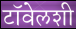
टॉवेलशी